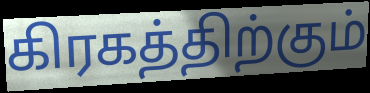
கிரகத்திற்கும்